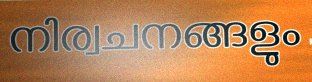
നിര്വചനങ്ങളും